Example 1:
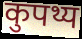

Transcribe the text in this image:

कुपथ्य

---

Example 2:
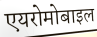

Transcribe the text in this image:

एयरोमोबाइल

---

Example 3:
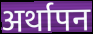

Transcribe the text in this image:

अर्थापन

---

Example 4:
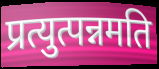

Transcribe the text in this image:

प्रत्युत्पन्नमति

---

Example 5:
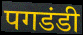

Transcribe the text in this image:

पगडंडी